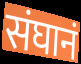
संघानं